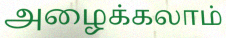
அழைக்கலாம்